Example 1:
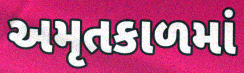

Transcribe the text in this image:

અમૃતકાળમાં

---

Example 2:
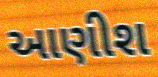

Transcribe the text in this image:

આણીશ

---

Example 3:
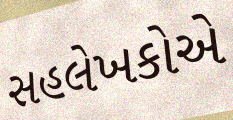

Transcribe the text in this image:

સહલેખકોએ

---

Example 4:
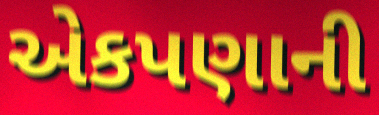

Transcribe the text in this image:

એકપણાની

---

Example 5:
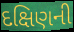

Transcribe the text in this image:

દક્ષિણની